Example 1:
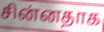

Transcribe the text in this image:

சின்னதாக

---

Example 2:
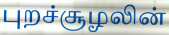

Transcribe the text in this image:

புறச்சூழலின்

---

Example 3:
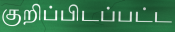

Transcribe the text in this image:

குறிப்பிடப்பட்ட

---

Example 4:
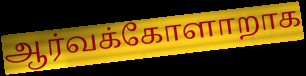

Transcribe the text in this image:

ஆர்வக்கோளாறாக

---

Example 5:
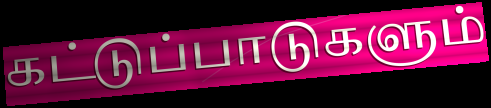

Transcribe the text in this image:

கட்டுப்பாடுகளும்